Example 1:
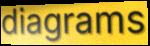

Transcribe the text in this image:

diagrams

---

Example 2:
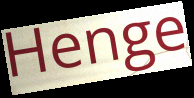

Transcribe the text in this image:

Henge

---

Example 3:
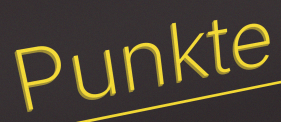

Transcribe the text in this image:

Punkte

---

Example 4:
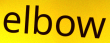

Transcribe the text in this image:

elbow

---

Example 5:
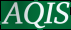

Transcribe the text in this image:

AQIS